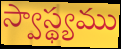
స్వాస్థ్యము